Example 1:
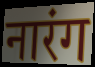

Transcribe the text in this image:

नारंग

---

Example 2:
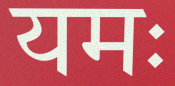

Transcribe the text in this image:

यमः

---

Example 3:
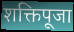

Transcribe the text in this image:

शक्तिपूजा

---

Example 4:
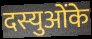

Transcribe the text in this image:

दस्युओंके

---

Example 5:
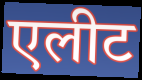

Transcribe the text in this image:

एलीट